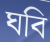
ঘবি